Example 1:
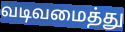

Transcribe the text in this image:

வடிவமைத்து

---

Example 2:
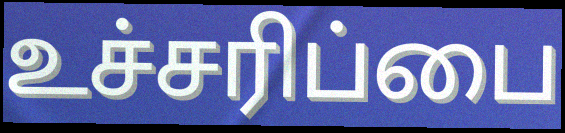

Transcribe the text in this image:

உச்சரிப்பை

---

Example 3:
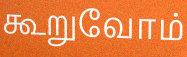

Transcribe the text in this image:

கூறுவோம்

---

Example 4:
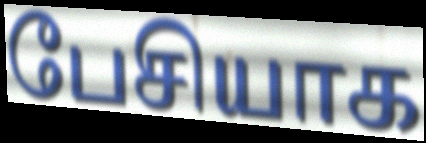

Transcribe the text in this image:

பேசியாக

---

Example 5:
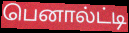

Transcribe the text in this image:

பெனால்ட்டி